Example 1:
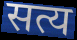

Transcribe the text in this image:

सत्य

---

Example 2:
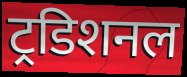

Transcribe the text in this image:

ट्रडिशनल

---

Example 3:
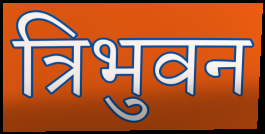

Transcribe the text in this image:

त्रिभुवन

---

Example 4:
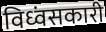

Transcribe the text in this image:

विध्वंसकारी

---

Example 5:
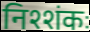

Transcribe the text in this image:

निश्शंकः